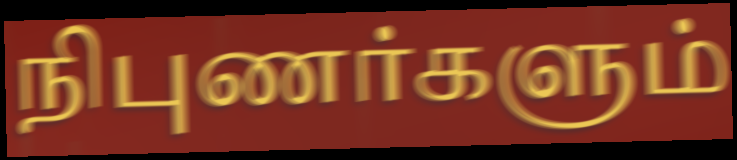
நிபுணர்களும்